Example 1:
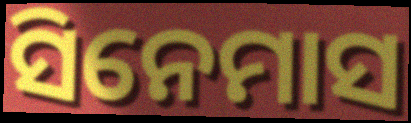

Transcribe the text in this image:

ସିନେମାସ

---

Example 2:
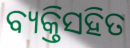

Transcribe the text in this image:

ବ୍ୟକ୍ତିସହିତ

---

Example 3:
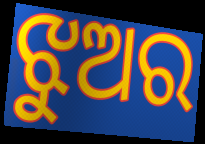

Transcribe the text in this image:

ଝୁଅର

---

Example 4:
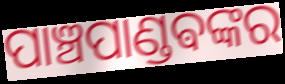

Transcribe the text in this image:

ପାଞ୍ଚପାଣ୍ଡଵଙ୍କର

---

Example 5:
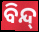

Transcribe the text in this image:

ବିନ୍ଦ୍